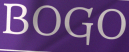
BOGO